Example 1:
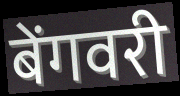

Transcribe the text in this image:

बेंगवरी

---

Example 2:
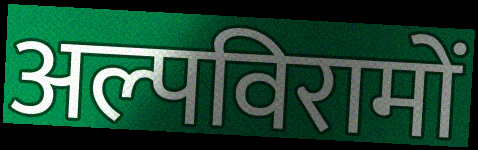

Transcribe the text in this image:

अल्पविरामों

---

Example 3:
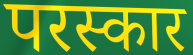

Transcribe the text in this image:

परस्कार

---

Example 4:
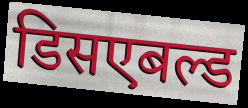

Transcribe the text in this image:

डिसएबल्ड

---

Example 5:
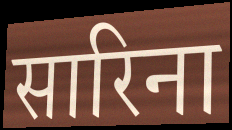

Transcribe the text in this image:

सारिना